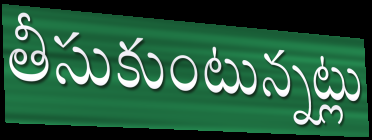
తీసుకుంటున్నట్లు